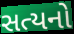
સત્યનો